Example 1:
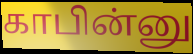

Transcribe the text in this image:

காபின்னு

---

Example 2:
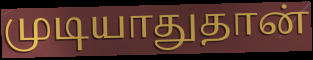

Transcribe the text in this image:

முடியாதுதான்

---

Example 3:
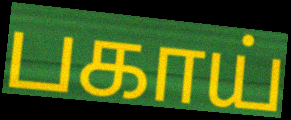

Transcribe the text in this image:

பகாய்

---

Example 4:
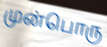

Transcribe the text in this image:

முன்பொரு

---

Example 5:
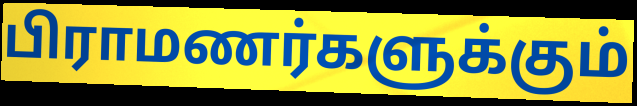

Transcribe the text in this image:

பிராமணர்களுக்கும்